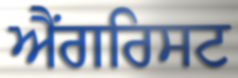
ਐਂਗਰਿਸਟ